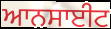
ਆਨਸਾਈਟ